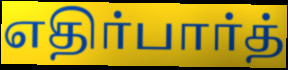
எதிர்பார்த்